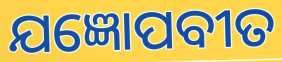
ଯଜ୍ଞୋପବୀତ